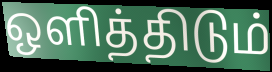
ஒளித்திடும்